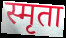
स्मृता